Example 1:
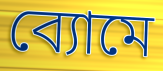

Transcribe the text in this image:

ব্যোমে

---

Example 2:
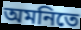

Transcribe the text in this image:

অমনিতে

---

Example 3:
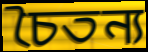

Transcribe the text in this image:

চৈতন্য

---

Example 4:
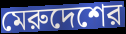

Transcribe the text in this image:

মেরুদেশের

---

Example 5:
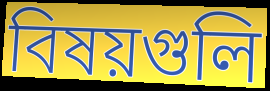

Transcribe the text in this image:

বিষয়গুলি